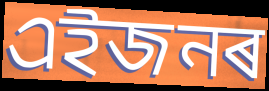
এইজনৰ